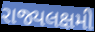
રાજ્યલક્ષમી